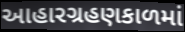
આહારગ્રહણકાળમાં